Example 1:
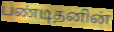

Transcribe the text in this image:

பண்டிதனின்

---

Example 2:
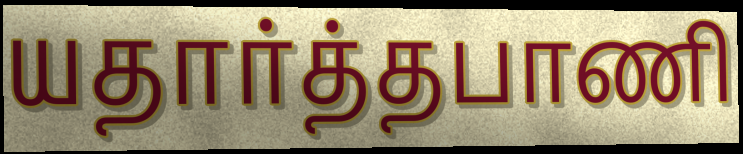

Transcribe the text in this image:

யதார்த்தபாணி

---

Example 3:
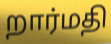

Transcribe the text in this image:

றார்மதி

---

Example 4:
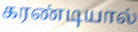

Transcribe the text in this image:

கரண்டியால்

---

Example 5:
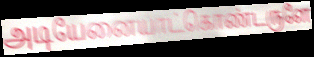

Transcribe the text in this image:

அடியேனையாட்கொண்டருளே